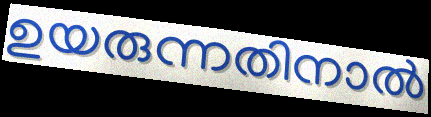
ഉയരുന്നതിനാൽ